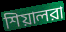
শিয়ালরা